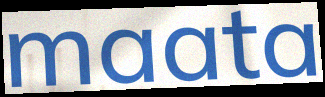
maata